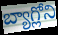
బ్యాగ్లోని